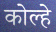
कोल्हे